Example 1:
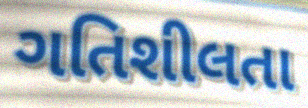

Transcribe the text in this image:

ગતિશીલતા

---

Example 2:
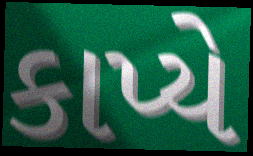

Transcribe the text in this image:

કાપ્યે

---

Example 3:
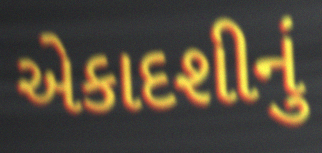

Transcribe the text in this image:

એકાદશીનું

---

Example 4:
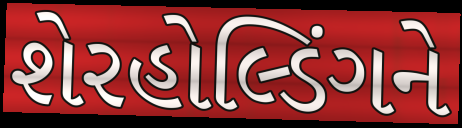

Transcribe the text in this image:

શેરહોલ્ડિંગને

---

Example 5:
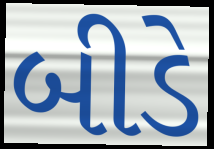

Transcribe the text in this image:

બીડે